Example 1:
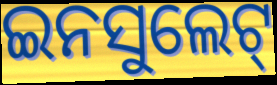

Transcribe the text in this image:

ଇନସୁଲେଟ୍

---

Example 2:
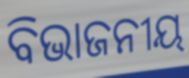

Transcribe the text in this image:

ବିଭାଜନୀୟ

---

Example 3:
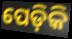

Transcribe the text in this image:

ପେଡ଼ିକି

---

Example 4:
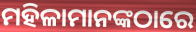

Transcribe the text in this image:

ମହିଳାମାନଙ୍କଠାରେ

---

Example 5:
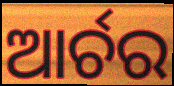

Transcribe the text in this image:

ଆର୍ଚର